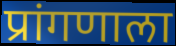
प्रांगणाला